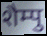
शैम्पु